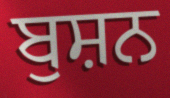
ਬੁਸ਼ਨ